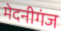
मेदनीगंज